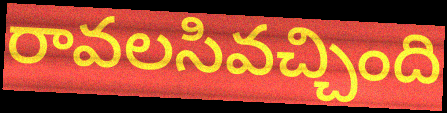
రావలసివచ్చింది